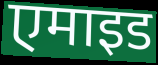
एमाइड